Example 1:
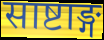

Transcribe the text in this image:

साष्टाङ्ग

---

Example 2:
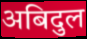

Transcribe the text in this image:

अबिदुल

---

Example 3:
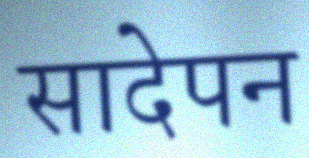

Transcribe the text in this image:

सादेपन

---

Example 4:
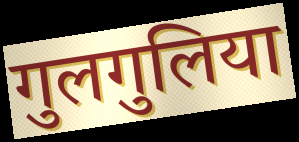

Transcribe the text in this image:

गुलगुलिया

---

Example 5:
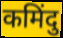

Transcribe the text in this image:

कमिंदु